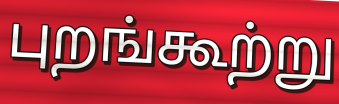
புறங்கூற்று